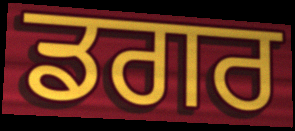
ਡਗਰ